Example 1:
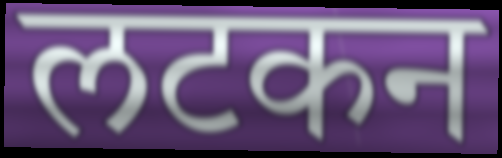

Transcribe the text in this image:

लटकन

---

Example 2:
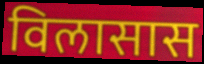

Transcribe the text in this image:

विलासास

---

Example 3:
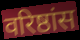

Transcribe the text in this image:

वरिष्ठांस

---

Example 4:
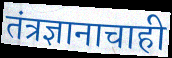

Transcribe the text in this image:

तंत्रज्ञानाचाही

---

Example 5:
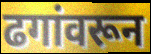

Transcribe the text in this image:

ढगांवरून